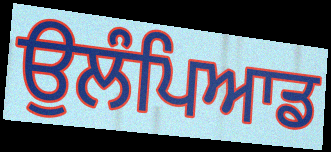
ਉਲੰਪਿਆਡ